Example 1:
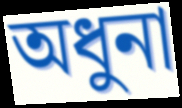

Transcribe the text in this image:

অধুনা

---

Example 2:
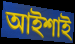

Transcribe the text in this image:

আইশাই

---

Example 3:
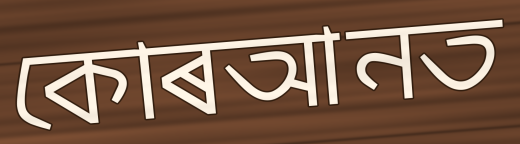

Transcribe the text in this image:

কোৰআনত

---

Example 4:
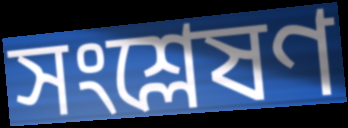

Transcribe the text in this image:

সংশ্লেষণ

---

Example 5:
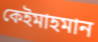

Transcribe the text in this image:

কেইমাহমান